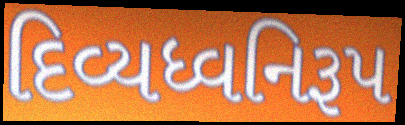
દિવ્યધ્વનિરૂપ